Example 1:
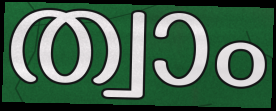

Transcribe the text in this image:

ത്വാം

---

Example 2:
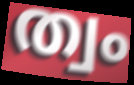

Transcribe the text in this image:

ത്വം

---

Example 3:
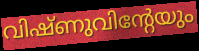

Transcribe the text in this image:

വിഷ്ണുവിന്റേയും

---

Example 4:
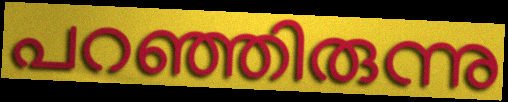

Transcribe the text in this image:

പറഞ്ഞിരുന്നു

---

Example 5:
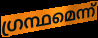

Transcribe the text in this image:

ഗ്രന്ഥമെന്ന്